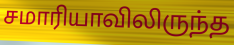
சமாரியாவிலிருந்த